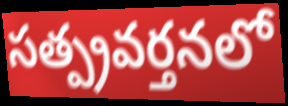
సత్ప్రవర్తనలో